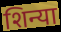
शिन्या